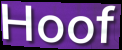
Hoof